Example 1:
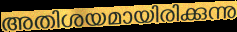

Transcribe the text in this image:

അതിശയമായിരിക്കുന്നു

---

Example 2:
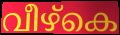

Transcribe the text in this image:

വീഴ്കെ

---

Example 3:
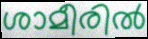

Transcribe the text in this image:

ശാമീരിൽ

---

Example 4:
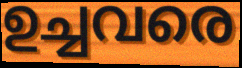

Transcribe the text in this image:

ഉച്ചവരെ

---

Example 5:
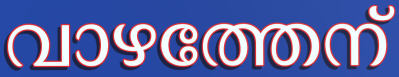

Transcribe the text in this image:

വാഴത്തേന്